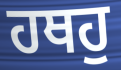
ਹਥਹੁ